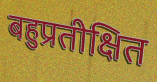
बहुप्रतीक्षित